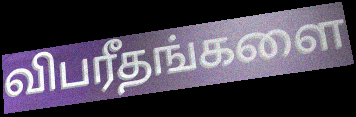
விபரீதங்களை